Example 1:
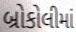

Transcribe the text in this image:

બ્રોકોલીમાં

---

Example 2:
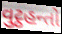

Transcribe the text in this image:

વુટ્ઠહન્તો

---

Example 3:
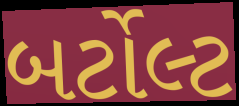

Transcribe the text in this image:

બર્ટોલ્ટ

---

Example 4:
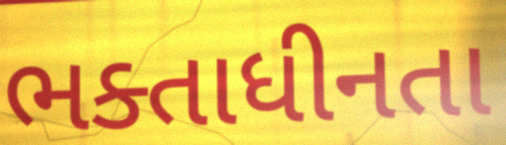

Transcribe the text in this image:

ભક્તાધીનતા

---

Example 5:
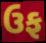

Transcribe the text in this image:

ઉફ